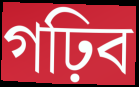
গঢ়িব